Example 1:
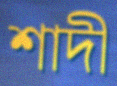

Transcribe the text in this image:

শাদী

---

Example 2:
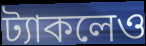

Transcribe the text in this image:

ট্যাকলেও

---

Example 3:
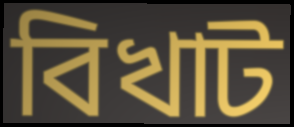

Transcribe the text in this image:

বিখাট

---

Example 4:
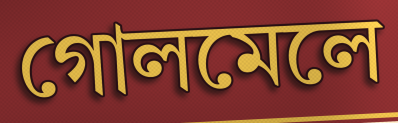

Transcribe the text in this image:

গোলমেলে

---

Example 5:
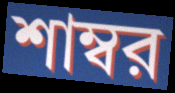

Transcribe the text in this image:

শাম্বর